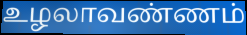
உழலாவண்ணம்